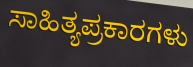
ಸಾಹಿತ್ಯಪ್ರಕಾರಗಳು